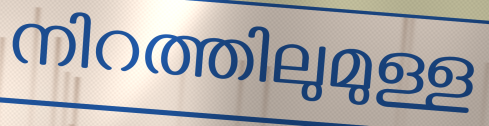
നിറത്തിലുമുള്ള